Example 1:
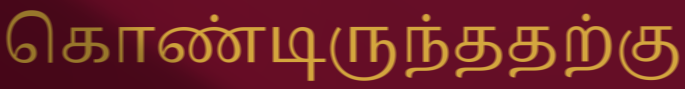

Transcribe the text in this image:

கொண்டிருந்ததற்கு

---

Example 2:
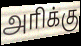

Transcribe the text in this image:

அரிக்கு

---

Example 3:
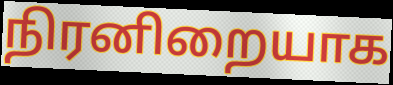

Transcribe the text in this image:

நிரனிறையாக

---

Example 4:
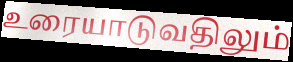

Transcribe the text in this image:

உரையாடுவதிலும்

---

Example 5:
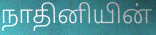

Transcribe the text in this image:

நாதினியின்